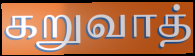
கறுவாத்